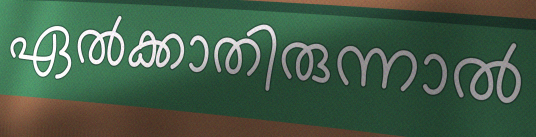
ഏൽക്കാതിരുന്നാൽ